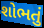
શોભતું